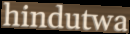
hindutwa